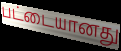
பட்டையானது